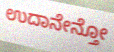
ಉದಾನೇನ್ತೋ